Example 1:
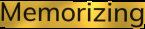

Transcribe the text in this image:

Memorizing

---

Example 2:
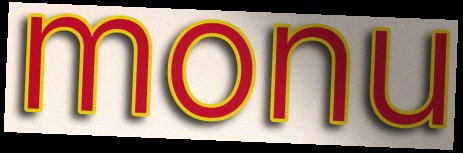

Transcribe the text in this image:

monu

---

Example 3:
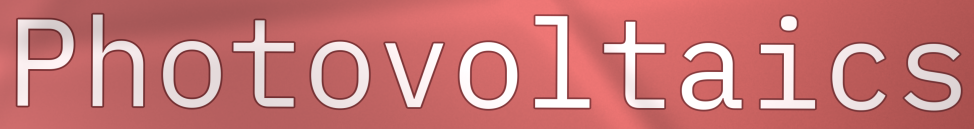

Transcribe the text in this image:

Photovoltaics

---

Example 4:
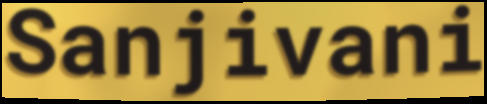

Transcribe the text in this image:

Sanjivani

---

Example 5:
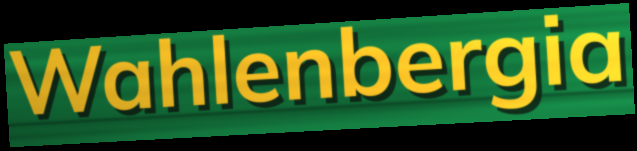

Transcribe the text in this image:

Wahlenbergia